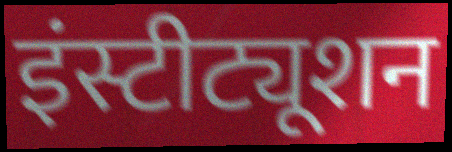
इंस्टीट्यूशन